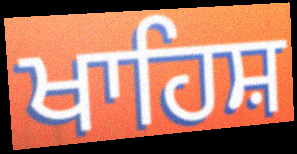
ਖਾਹਿਸ਼